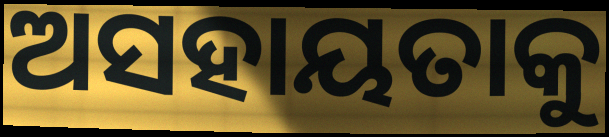
ଅସହାୟତାକୁ